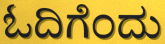
ಓದಿಗೆಂದು